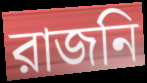
রাজনি